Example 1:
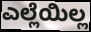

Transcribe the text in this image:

ಎಲ್ಲೆಯಿಲ್ಲ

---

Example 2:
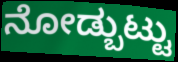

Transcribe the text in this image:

ನೋಡ್ಬುಟ್ಟು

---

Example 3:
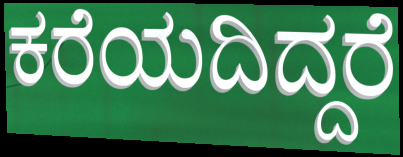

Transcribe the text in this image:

ಕರೆಯದಿದ್ದರೆ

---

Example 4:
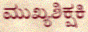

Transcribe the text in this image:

ಮುಖ್ಯಶಿಕ್ಷಕಿ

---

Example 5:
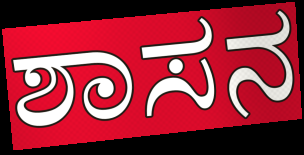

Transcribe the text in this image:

ಶಾಸನ